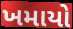
ખમાયો